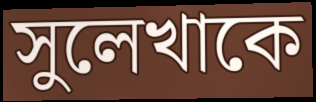
সুলেখাকে